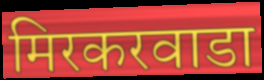
मिरकरवाडा